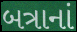
બત્રાનાં